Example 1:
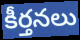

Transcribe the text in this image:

కీర్తనలు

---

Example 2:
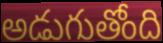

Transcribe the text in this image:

అడుగుతోంది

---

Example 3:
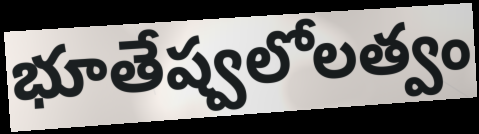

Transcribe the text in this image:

భూతేష్వలోలత్వం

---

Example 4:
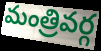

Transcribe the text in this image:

మంత్రివర్గ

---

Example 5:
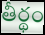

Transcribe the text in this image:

తీర్థం